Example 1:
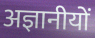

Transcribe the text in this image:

अज्ञानीयों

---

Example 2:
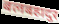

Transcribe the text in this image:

बलबहादुर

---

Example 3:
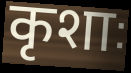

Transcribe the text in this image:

कृशाः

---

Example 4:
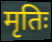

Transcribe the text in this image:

मृतिः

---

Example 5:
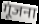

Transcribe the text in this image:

गूंजना